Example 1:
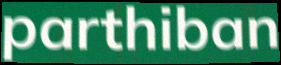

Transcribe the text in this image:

parthiban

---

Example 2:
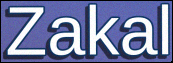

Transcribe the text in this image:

Zakal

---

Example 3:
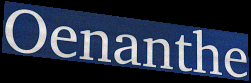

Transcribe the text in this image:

Oenanthe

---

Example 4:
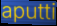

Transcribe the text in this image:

aputti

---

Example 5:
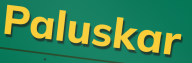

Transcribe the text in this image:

Paluskar